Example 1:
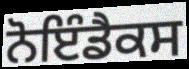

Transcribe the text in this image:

ਨੋਇੰਡੈਕਸ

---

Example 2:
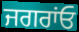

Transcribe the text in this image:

ਜਗਰਾਂਓ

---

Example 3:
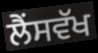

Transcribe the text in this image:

ਲੈਂਸਵੱਖ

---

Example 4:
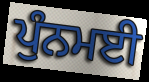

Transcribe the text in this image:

ਪੁੰਨਮਈ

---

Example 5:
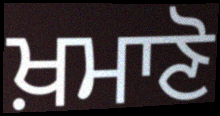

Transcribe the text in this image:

ਖ਼ਮਾਣੋ